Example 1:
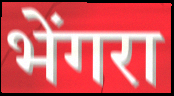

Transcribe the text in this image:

भेंगरा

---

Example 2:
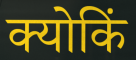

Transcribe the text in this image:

क्योकिं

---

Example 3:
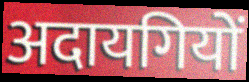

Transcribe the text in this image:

अदायगियों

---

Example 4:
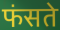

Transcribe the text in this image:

फंसते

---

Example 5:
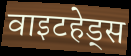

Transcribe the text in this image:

वाइटहेड्स